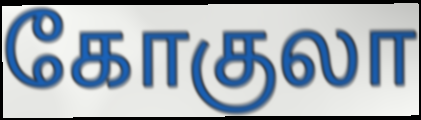
கோகுலா